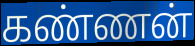
கண்ணன்